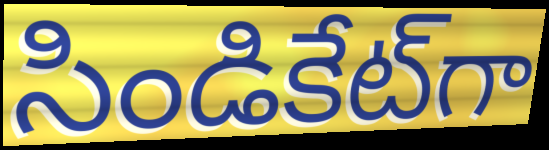
సిండికేట్‌గా